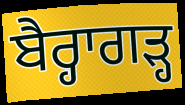
ਬੈਰ੍ਹਾਗੜ੍ਹ